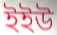
ইইউ